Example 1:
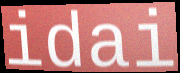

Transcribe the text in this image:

idai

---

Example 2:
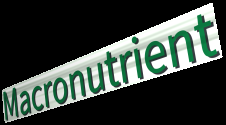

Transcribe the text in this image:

Macronutrient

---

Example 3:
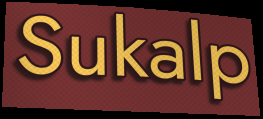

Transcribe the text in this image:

Sukalp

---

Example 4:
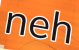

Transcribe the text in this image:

neh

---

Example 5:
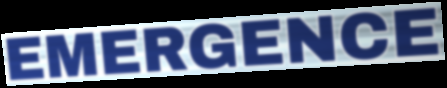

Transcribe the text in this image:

EMERGENCE